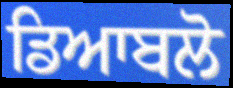
ਡਿਆਬਲੋ